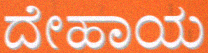
ದೇಹಾಯ